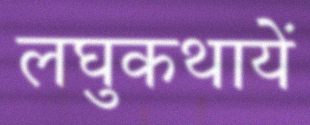
लघुकथायें